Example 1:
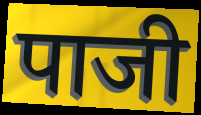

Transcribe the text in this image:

पाजी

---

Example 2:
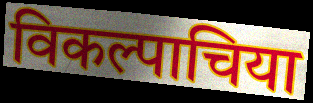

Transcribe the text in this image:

विकल्पाचिया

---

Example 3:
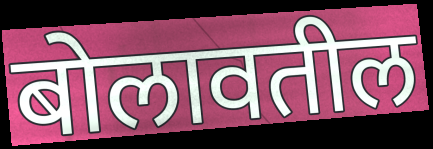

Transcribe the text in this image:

बोलावतील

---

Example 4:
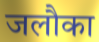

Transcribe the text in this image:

जलौका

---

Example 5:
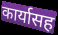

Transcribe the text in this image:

कार्यासह